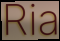
Ria